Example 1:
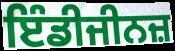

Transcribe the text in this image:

ਇੰਡੀਜੀਨਜ਼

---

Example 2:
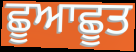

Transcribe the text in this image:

ਛੂਆਛੂਤ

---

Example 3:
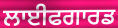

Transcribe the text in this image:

ਲਾਈਫਗਾਰਡ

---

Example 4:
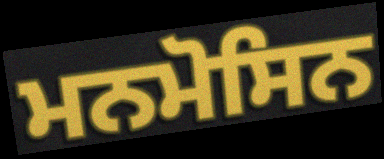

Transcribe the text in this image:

ਮਨਮੋਸਿਨ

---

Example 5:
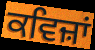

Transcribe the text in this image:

ਕਵਿਜ਼ਾਂ